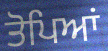
ਤੋਪਿਆਂ